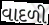
વાદળી